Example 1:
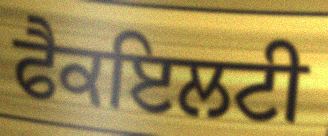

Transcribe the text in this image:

ਫੈਕਇਲਟੀ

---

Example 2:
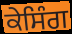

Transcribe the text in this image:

ਕੇਸਿੰਗ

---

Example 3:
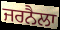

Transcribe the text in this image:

ਜਰਨੈਲਾ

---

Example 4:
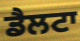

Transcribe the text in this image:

ਡੈਲਟਾ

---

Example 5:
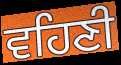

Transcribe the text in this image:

ਵਹਿਣੀ